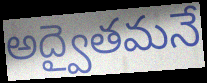
అద్వైతమనే